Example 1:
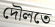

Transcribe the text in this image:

দৌলতে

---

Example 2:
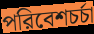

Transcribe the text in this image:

পরিবেশচর্চা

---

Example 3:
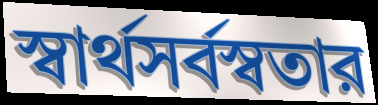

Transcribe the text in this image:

স্বার্থসর্বস্বতার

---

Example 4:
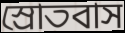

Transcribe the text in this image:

স্রোতবাস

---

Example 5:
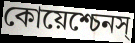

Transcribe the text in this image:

কোয়েশ্চেনস্